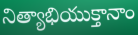
నిత్యాభియుక్తానాం